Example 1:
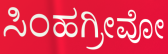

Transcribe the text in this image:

ಸಿಂಹಗ್ರೀವೋ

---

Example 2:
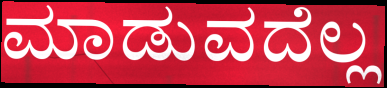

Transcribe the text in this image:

ಮಾಡುವದೆಲ್ಲ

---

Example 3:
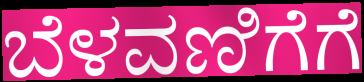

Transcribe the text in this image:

ಬೆಳವಣಿಗೆಗೆ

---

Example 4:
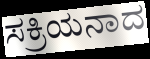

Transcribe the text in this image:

ಸಕ್ರಿಯನಾದ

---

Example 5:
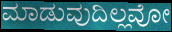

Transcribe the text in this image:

ಮಾಡುವುದಿಲ್ಲವೋ